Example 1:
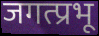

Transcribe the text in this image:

जगत्प्रभू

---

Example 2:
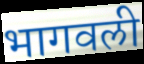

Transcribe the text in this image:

भागवली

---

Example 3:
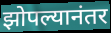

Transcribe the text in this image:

झोपल्यानंतर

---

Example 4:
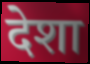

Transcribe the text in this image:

देशा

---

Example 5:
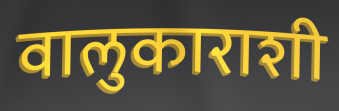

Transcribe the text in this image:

वालुकाराशी